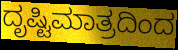
ದೃಷ್ಟಿಮಾತ್ರದಿಂದ